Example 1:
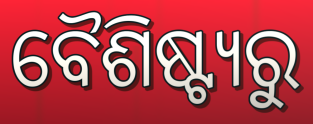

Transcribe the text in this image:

ବୈଶିଷ୍ଟ୍ୟରୁ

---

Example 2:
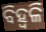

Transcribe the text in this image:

ବିହ୍ୱଳି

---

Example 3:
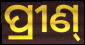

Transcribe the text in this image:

ପ୍ରୀଣ୍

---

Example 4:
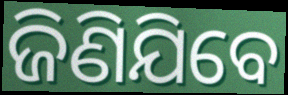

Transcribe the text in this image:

ଜିଣିଯିବେ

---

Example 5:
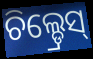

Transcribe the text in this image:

ଚିଲ୍ଡ୍ରେସ୍